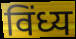
विंध्य